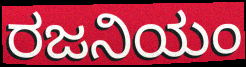
ರಜನಿಯಂ